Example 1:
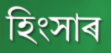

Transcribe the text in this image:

হিংসাৰ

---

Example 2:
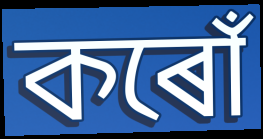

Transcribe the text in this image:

কৰোঁ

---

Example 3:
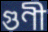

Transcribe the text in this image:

গুণী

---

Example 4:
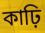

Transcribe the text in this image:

কাঢ়ি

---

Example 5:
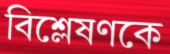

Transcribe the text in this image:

বিশ্লেষণকে